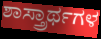
ಶಾಸ್ತ್ರಾರ್ಥಗಳ